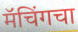
मॅचिंगचा